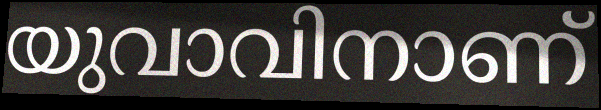
യുവാവിനാണ്